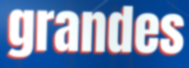
grandes